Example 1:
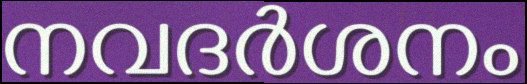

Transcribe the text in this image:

നവദർശനം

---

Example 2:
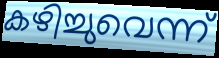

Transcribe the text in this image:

കഴിച്ചുവെന്ന്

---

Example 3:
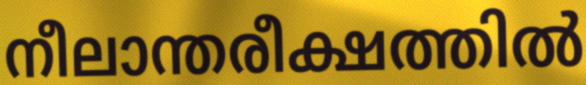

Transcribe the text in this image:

നീലാന്തരീക്ഷത്തിൽ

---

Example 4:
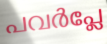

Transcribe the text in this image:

പവർപ്ലേ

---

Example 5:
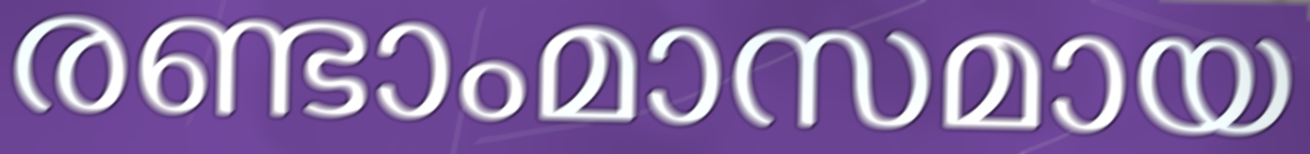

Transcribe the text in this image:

രണ്ടാംമാസമായ